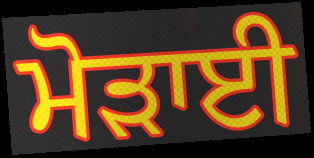
ਮੋੜਾਈ